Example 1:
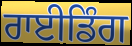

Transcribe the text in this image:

ਰਾਈਡਿੰਗ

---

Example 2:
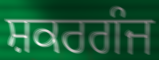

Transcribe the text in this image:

ਸ਼ਕਰਗੰਜ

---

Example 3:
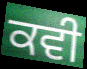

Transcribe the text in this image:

ਕਵੀ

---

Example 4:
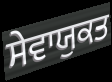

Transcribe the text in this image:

ਸੇਵਾਯੁਕਤ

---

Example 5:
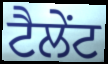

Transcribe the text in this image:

ਟੈਲੇੰਟ